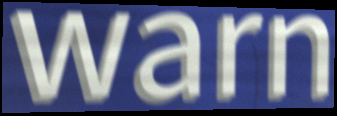
warn